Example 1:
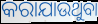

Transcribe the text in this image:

କରାଯାଉଥୁବା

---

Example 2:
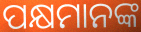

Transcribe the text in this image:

ପକ୍ଷମାନଙ୍କ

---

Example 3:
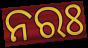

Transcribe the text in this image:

ନରଃ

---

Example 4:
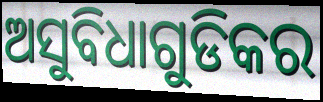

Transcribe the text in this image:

ଅସୁବିଧାଗୁଡିକର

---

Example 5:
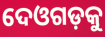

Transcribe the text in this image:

ଦେଓଗଡ଼କୁ